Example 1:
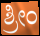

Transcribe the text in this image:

ಶ್ರೀಂ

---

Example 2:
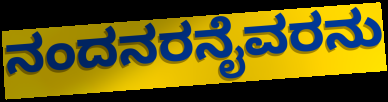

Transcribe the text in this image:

ನಂದನರನೈವರನು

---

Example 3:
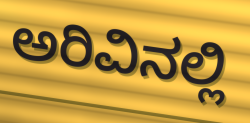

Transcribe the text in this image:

ಅರಿವಿನಲ್ಲಿ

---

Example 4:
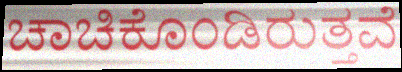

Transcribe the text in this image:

ಚಾಚಿಕೊಂಡಿರುತ್ತವೆ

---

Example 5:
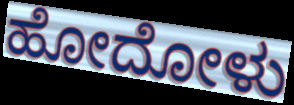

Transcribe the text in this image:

ಹೋದೋಳು